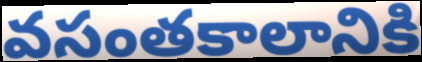
వసంతకాలానికి